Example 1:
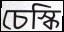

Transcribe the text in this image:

চেস্কি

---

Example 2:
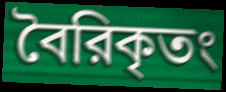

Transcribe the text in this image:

বৈরিকৃতং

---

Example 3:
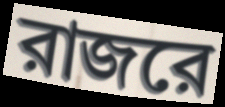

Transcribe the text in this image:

রাজরে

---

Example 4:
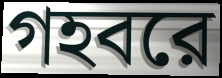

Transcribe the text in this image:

গহবরে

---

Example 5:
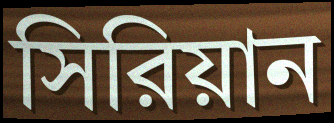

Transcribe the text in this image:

সিরিয়ান